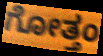
ಗೋತ್ತಂ